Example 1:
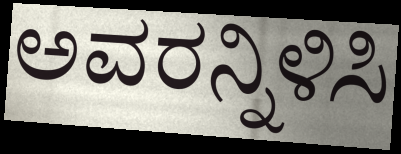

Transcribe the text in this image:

ಅವರನ್ನಿಳಿಸಿ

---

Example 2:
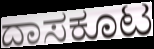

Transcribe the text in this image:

ದಾಸಕೂಟ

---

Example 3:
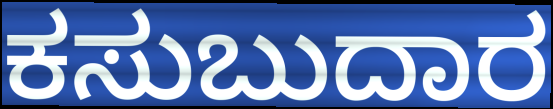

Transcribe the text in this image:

ಕಸುಬುದಾರ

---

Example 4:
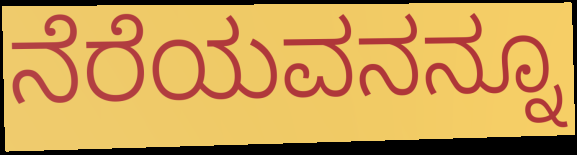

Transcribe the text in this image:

ನೆರೆಯವನನ್ನೂ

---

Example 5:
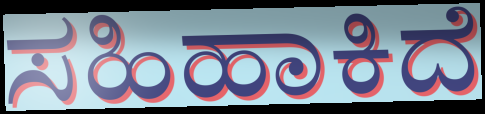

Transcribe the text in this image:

ಸಹಿಹಾಕಿದೆ